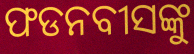
ଫଡନବୀସଙ୍କୁ